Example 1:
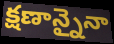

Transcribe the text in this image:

క్షణాన్నైనా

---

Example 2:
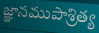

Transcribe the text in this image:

జ్ఞానముపాశ్రిత్య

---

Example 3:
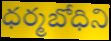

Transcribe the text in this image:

ధర్మబోధిని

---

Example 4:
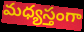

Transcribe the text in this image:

మధ్యస్తంగా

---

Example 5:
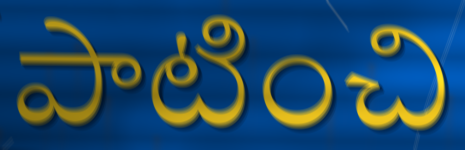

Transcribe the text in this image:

పాటించి